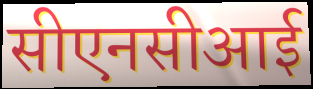
सीएनसीआई